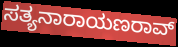
ಸತ್ಯನಾರಾಯಣರಾವ್